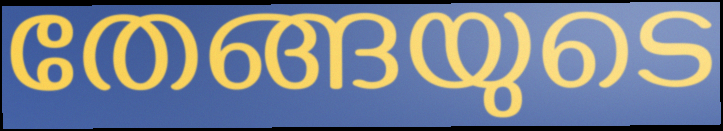
തേങ്ങയുടെ